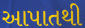
આપાતથી